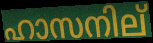
ഹാസനില്